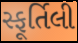
સ્ફૂર્તિલી